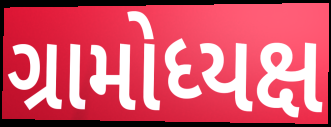
ગ્રામોધ્યક્ષ